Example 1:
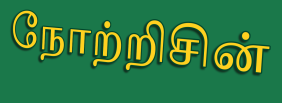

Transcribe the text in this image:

நோற்றிசின்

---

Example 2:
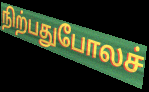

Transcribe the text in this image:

நிற்பதுபோலச்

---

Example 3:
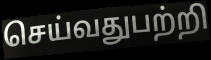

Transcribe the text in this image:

செய்வதுபற்றி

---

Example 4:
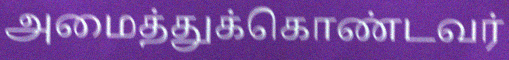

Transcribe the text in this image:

அமைத்துக்கொண்டவர்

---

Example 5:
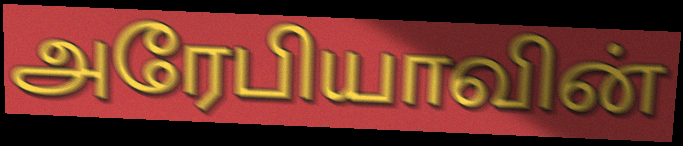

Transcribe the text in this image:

அரேபியாவின்